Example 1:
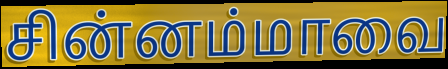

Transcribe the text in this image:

சின்னம்மாவை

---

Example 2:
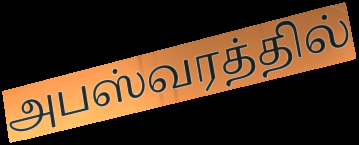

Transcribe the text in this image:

அபஸ்வரத்தில்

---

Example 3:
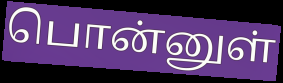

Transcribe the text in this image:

பொன்னுள்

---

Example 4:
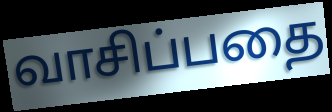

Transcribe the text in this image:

வாசிப்பதை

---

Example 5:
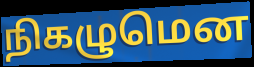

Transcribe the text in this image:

நிகழுமென